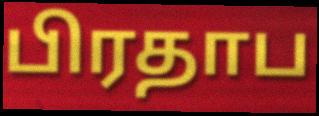
பிரதாப